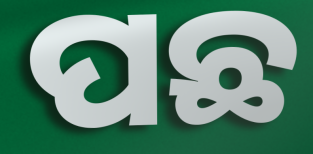
ପଛ